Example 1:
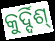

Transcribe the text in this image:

କୁର୍ଦ୍ଦିଶ୍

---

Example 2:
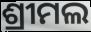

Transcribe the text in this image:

ଶ୍ରୀମଲ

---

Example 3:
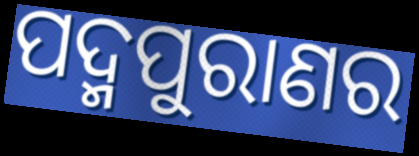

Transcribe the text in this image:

ପଦ୍ମପୁରାଣର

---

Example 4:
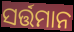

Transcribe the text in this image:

ସର୍ତ୍ତମାନ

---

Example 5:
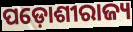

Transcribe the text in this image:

ପଡ଼ୋଶୀରାଜ୍ୟ